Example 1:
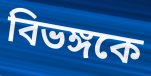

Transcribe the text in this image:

বিভঙ্গকে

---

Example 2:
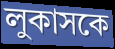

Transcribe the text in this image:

লুকাসকে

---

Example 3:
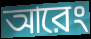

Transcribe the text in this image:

আরেং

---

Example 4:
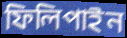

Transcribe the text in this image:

ফিলিপাইন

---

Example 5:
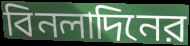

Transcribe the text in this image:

বিনলাদিনের